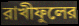
রাখীফুলের